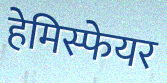
हेमिस्फेयर